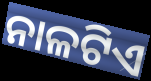
ନାଳଟିଏ